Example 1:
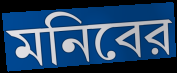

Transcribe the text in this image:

মনিবের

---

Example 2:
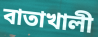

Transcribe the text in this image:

বাতাখালী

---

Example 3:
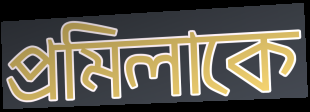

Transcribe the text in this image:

প্রমিলাকে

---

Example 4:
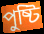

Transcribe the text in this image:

পুষ্টি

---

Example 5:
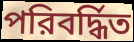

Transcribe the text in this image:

পরিবর্দ্ধিত